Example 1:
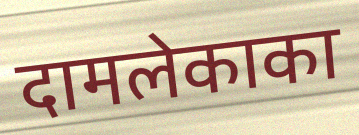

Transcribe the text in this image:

दामलेकाका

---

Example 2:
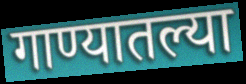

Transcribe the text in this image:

गाण्यातल्या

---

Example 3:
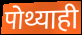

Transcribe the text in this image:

पोथ्याही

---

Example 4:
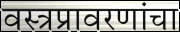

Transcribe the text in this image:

वस्त्रप्रावरणांचा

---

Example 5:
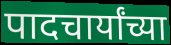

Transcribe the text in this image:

पादचार्यांच्या